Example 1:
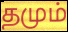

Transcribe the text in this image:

தமும்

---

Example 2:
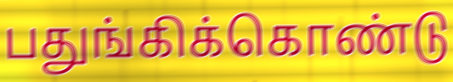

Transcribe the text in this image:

பதுங்கிக்கொண்டு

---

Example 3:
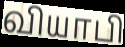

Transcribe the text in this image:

வியாபி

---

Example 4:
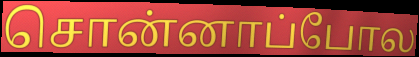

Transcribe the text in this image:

சொன்னாப்போல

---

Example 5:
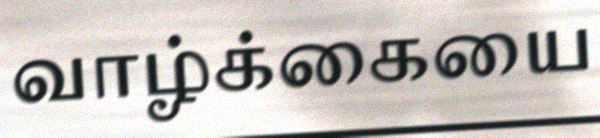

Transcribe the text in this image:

வாழ்க்கையை